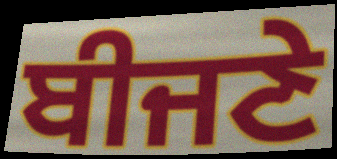
ਬੀਜਣੇ